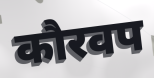
कौरवप